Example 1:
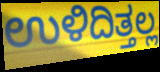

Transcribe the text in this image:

ಉಳಿದಿತ್ತಲ್ಲ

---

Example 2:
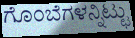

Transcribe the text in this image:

ಗೊಂಬೆಗಳನ್ನಿಟ್ಟು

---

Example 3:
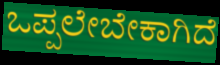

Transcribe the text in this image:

ಒಪ್ಪಲೇಬೇಕಾಗಿದೆ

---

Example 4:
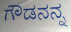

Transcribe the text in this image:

ಗೌಡನನ್ನ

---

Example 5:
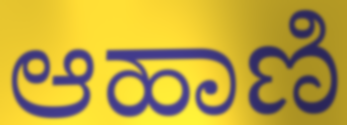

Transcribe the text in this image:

ಆಹಾಣಿ